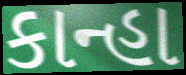
કાન્હા